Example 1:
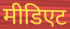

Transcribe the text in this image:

मीडिएट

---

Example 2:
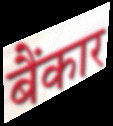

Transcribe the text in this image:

बैंकार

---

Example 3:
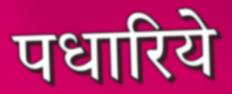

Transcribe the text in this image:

पधारिये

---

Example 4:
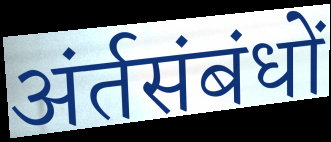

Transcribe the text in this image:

अंर्तसंबंधों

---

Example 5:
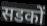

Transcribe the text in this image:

सडकों